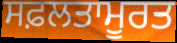
ਸਫ਼ਲਤਾਮੂਰਤ